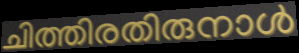
ചിത്തിരതിരുനാൾ